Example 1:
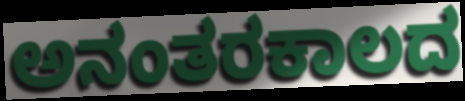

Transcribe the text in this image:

ಅನಂತರಕಾಲದ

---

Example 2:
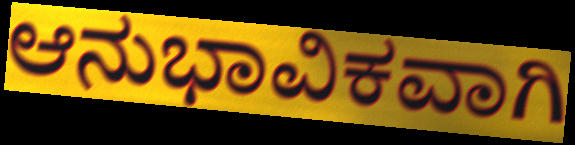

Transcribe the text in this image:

ಆನುಭಾವಿಕವಾಗಿ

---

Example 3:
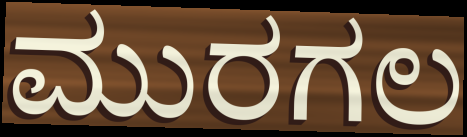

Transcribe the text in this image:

ಮುರಗಲ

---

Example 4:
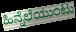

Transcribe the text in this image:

ಹಿನ್ನೆಲೆಯುಂಟು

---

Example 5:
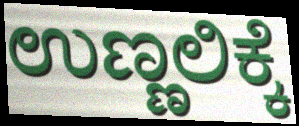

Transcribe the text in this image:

ಉಣ್ಣಲಿಕ್ಕೆ